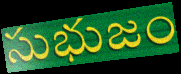
సుభుజం